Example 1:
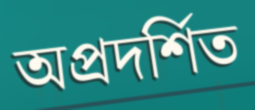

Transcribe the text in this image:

অপ্রদর্শিত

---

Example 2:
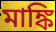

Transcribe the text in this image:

মাঙ্কি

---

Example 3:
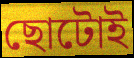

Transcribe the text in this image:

ছোটোই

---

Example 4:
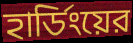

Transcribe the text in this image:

হার্ডিংয়ের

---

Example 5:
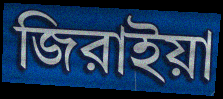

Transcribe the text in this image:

জিরাইয়া